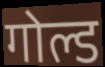
गोल्‍ड